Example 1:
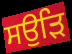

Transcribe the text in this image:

ਸਉੜਿ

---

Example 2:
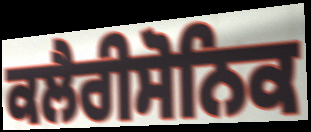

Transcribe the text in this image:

ਕਲੈਰੀਸੋਨਿਕ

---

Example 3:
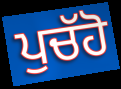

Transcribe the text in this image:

ਪੁਚੱਹੋ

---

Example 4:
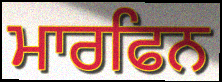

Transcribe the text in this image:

ਮਾਰਫਿਨ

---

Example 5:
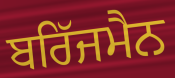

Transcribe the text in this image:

ਬਰਿੱਜਮੈਨ